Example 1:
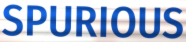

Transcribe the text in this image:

SPURIOUS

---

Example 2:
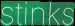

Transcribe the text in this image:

stinks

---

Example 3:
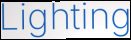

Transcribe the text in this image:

Lighting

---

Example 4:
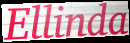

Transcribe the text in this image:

Ellinda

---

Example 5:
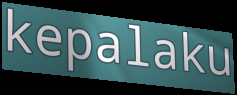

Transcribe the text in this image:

kepalaku